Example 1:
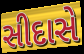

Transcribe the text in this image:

સીદાસે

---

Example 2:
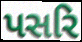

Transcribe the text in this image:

પસરિ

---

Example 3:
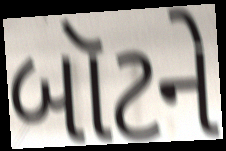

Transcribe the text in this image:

બૉટને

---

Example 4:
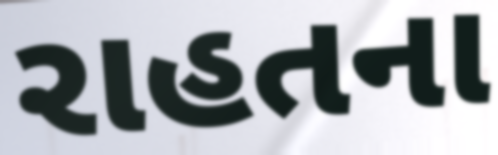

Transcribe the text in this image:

રાહતના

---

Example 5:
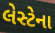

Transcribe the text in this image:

લેસ્ટેના